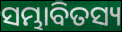
ସମ୍ଭାବିତସ୍ୟ